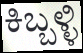
ಕಿಬ್ಬಳ್ಳಿ